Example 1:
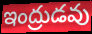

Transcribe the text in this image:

ఇంద్రుడవు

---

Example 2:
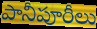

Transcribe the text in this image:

పానీపూరీలు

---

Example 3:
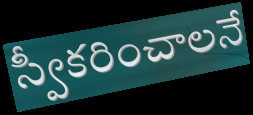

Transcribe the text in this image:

స్వీకరించాలనే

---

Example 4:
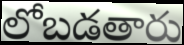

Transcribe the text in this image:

లోబడతారు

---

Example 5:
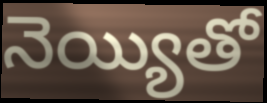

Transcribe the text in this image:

నెయ్యితో